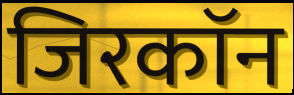
जिरकॉन